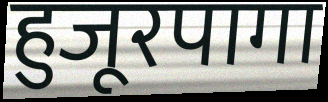
हुजूरपागा